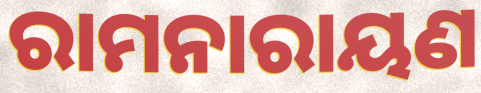
ରାମନାରାୟଣ